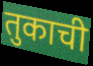
तुकाची